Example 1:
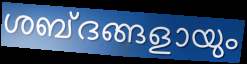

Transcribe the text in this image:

ശബ്ദങ്ങളായും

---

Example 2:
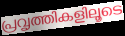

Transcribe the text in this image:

പ്രവൃത്തികളിലൂടെ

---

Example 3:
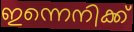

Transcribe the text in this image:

ഇന്നെനിക്ക്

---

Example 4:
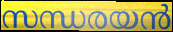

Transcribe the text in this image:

സന്ധരയൻ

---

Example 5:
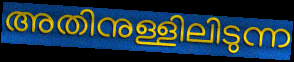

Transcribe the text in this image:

അതിനുള്ളിലിടുന്ന